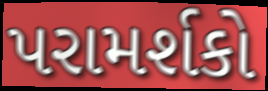
પરામર્શકો